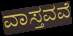
ವಾಸ್ತವವೆ